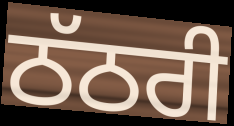
ਠੱਠਰੀ